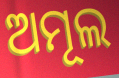
ଅମୂଲ